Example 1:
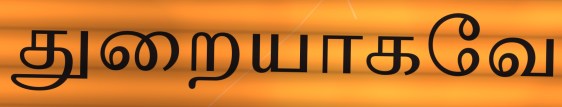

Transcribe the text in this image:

துறையாகவே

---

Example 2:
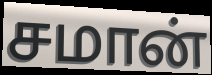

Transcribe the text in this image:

சமான்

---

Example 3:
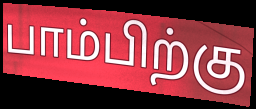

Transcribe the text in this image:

பாம்பிற்கு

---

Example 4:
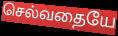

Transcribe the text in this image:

செல்வதையே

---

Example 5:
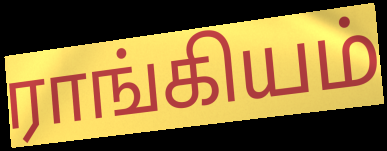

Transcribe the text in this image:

ராங்கியம்